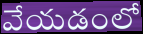
వేయడంలో